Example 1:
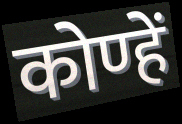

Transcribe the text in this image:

कोण्हें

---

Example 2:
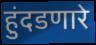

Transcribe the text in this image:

हुंदडणारे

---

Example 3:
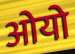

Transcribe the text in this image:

ओयो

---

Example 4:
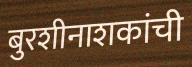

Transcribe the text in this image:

बुरशीनाशकांची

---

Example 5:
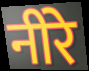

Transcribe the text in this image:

नीरे